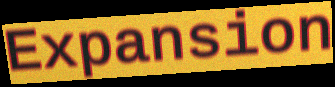
Expansion